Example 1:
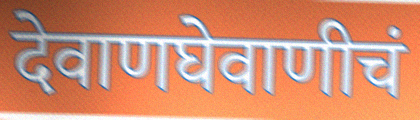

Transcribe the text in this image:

देवाणघेवाणीचं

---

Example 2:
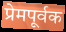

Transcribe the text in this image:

प्रेमपूर्वक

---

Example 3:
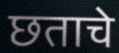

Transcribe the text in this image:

छताचे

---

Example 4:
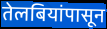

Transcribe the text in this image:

तेलबियांपासून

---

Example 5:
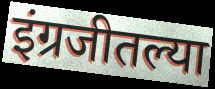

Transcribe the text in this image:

इंग्रजीतल्या